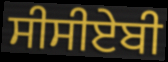
ਸੀਸੀਏਬੀ